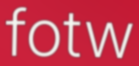
fotw